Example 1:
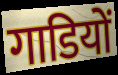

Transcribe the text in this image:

गाडियों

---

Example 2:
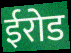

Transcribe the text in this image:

ईरोड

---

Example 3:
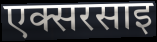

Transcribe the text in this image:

एक्सरसाइ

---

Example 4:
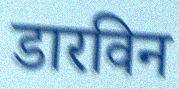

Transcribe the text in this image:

डारविन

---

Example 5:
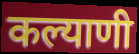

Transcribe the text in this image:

कल्याणी